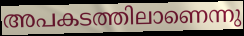
അപകടത്തിലാണെന്നു